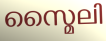
സ്മൈലി